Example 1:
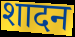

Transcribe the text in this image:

शादन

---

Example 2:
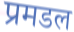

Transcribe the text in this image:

प्रमडल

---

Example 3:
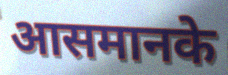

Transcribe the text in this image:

आसमानके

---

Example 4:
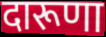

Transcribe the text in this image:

दारूणा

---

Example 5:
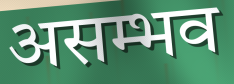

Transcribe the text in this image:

असम्‍भव